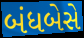
બંધબેસે